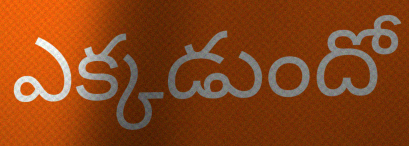
ఎక్కడుందో